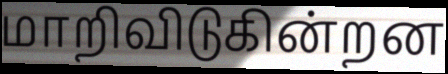
மாறிவிடுகின்றன